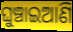
ଘୁଞ୍ଚାଇଆଣି